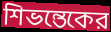
শিভন্তেকের